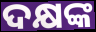
ଦକ୍ଷଙ୍କ